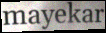
mayekar